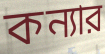
কন্যার